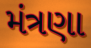
મંત્રણા